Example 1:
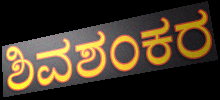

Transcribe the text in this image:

ಶಿವಶಂಕರ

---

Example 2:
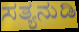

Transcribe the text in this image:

ಸತ್ಯನುಡಿ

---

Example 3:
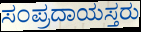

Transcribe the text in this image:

ಸಂಪ್ರದಾಯಸ್ತರು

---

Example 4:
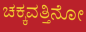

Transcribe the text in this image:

ಚಕ್ಕವತ್ತಿನೋ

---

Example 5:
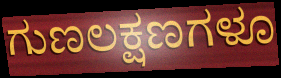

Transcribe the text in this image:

ಗುಣಲಕ್ಷಣಗಳೂ